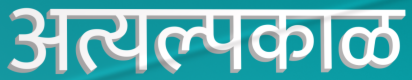
अत्यल्पकाळ